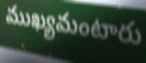
ముఖ్యమంటారు